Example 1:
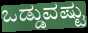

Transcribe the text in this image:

ಒಡ್ಡುವಷ್ಟು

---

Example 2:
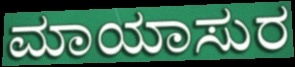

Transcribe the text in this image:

ಮಾಯಾಸುರ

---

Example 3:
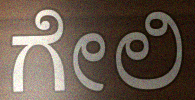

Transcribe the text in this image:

ಗೇಲಿ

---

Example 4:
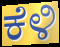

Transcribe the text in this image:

ಕೆಳಿ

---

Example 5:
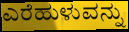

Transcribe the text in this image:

ಎರೆಹುಳುವನ್ನು